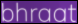
bhraat